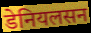
डेनियलसन